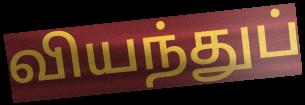
வியந்துப்